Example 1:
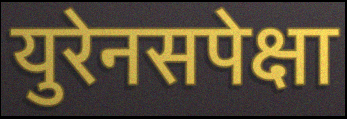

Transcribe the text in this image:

युरेनसपेक्षा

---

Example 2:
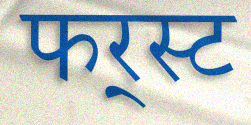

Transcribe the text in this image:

फर्स्ट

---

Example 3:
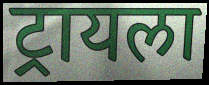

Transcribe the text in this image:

ट्रायला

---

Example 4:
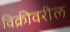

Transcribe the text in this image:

विक्रीवरील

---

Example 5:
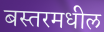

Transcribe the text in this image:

बस्तरमधील